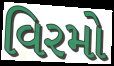
વિરમો